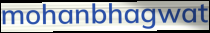
mohanbhagwat